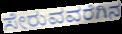
ಸೇರುವವರೆಗಿನ